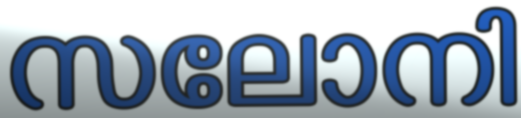
സലോനി